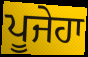
ਪੂਜੇਹਾ